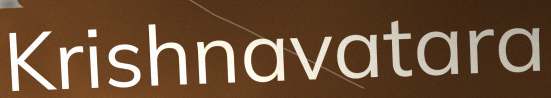
Krishnavatara